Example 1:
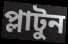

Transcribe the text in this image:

প্লাটুন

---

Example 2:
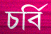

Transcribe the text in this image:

চর্বি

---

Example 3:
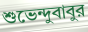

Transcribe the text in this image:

শুভেন্দুবাবুর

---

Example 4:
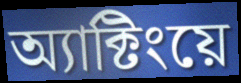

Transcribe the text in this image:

অ্যাক্টিংয়ে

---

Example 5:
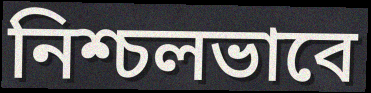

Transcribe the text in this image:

নিশ্চলভাবে